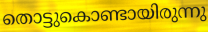
തൊട്ടുകൊണ്ടായിരുന്നു